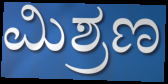
ಮಿಶ್ರಣ